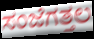
ಸಂಜೆಗತ್ತಲ